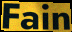
Fain